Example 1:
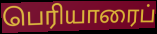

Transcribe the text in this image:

பெரியாரைப்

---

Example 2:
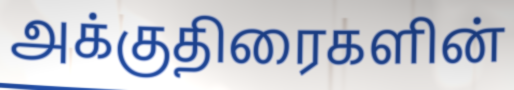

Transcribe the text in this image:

அக்குதிரைகளின்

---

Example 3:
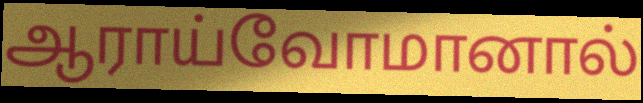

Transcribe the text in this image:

ஆராய்வோமானால்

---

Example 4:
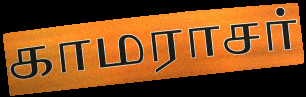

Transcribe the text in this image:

காமராசர்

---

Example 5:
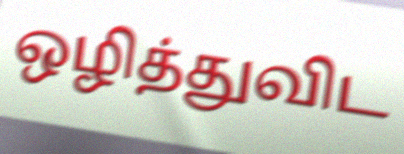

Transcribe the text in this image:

ஒழித்துவிட